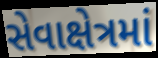
સેવાક્ષેત્રમાં